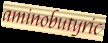
aminobutyric